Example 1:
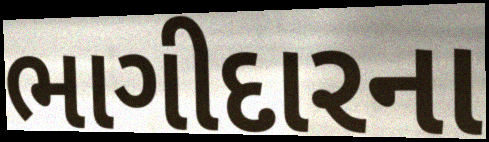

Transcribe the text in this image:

ભાગીદારના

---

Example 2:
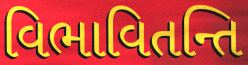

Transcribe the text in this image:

વિભાવિતન્તિ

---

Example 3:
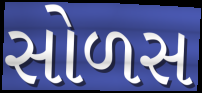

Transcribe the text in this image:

સોળસ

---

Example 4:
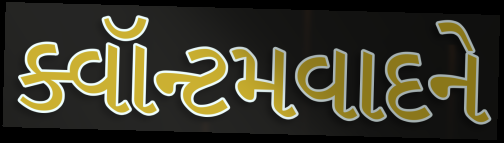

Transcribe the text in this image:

ક્વૉન્ટમવાદને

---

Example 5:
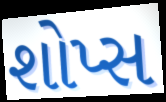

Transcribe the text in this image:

શોપ્સ